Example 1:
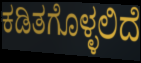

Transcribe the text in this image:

ಕಡಿತಗೊಳ್ಳಲಿದೆ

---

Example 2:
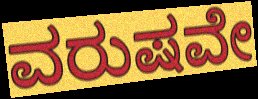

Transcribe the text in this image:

ವರುಷವೇ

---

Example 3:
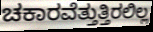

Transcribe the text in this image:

ಚಕಾರವೆತ್ತುತ್ತಿರಲಿಲ್ಲ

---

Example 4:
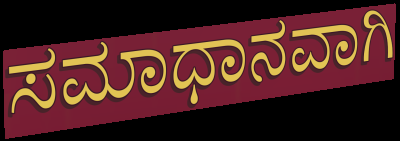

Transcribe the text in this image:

ಸಮಾಧಾನವಾಗಿ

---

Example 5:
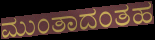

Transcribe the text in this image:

ಮುಂತಾದಂತಹ